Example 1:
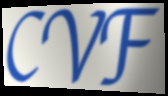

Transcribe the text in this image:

CVF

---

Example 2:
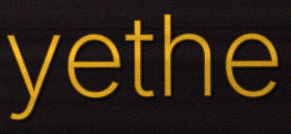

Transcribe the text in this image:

yethe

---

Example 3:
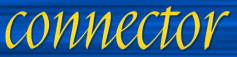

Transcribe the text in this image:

connector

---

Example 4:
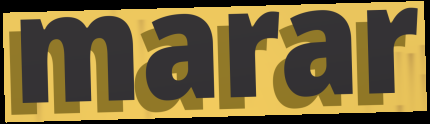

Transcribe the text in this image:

marar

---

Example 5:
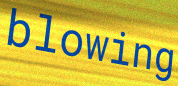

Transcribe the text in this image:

blowing